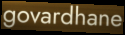
govardhane